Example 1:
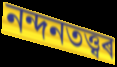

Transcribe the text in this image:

নন্দনতত্ত্বৰ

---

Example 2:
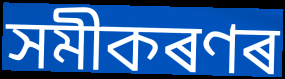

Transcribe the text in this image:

সমীকৰণৰ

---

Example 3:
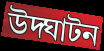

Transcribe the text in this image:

উদ্ঘাটন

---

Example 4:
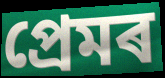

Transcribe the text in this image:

প্ৰেমৰ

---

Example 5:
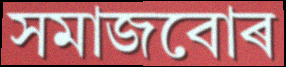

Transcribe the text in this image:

সমাজবোৰ